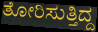
ತೋರಿಸುತ್ತಿದ್ದ